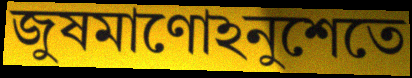
জুষমাণোঽনুশেতে